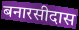
बनारसीदास